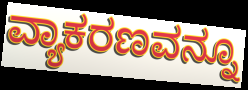
ವ್ಯಾಕರಣವನ್ನೂ